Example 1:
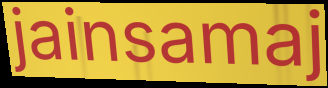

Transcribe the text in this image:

jainsamaj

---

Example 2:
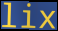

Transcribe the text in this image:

lix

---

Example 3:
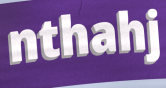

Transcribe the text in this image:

nthahj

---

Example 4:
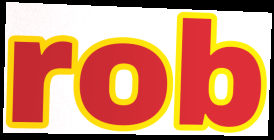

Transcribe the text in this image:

rob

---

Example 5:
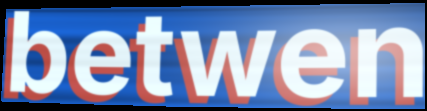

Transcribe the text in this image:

betwen